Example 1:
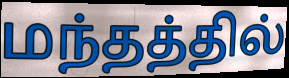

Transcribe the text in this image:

மந்தத்தில்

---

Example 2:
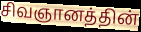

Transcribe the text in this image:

சிவஞானத்தின்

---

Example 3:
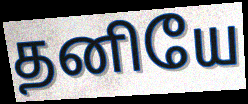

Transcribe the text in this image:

தனியே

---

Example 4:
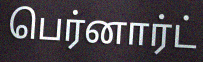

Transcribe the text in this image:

பெர்னார்ட்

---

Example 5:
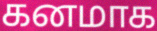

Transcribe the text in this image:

கனமாக